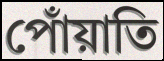
পোঁয়াতি